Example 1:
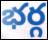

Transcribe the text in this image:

భర్గ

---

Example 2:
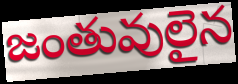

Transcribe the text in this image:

జంతువులైన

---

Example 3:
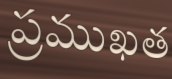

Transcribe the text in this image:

ప్రముఖత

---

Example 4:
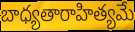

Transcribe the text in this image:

బాధ్యతారాహిత్యమే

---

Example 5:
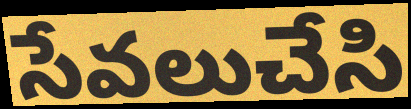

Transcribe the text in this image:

సేవలుచేసి